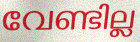
വേണ്ടില്ല